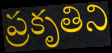
ప్రకృతిని